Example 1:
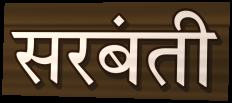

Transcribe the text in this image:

सरबंती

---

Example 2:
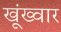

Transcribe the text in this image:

खूंख्वार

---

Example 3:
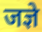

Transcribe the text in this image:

जज्ञे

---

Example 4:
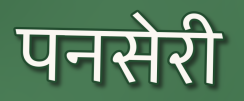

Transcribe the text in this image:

पनसेरी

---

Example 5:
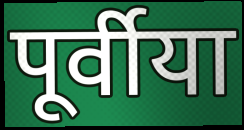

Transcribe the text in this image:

पूर्वीया